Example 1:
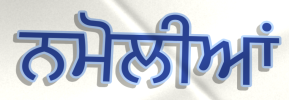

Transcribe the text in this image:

ਨਮੋਲੀਆਂ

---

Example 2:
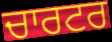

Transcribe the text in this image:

ਚਾਰਟਰ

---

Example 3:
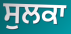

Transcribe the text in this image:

ਸੁਲਕਾ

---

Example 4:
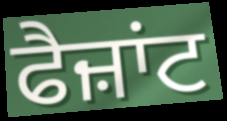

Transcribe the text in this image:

ਫੈਜ਼ਾਂਟ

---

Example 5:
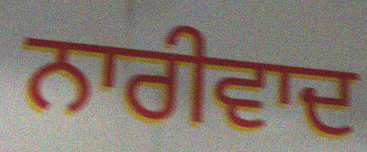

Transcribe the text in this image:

ਨਾਰੀਵਾਦ